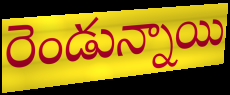
రెండున్నాయి